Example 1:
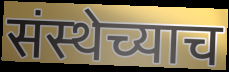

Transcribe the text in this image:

संस्थेच्याच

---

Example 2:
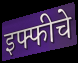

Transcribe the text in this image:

इफ्फीचे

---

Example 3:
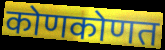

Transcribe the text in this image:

कोणकोणत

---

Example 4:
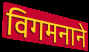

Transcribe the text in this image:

विगमनाने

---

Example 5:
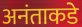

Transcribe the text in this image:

अनंताकडे